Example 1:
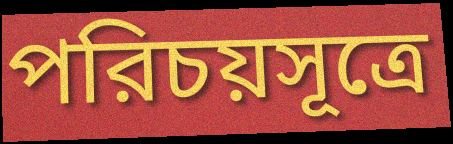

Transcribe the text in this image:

পরিচয়সূত্রে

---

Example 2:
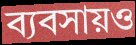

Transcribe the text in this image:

ব্যবসায়ও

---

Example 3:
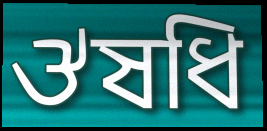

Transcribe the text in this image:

ঔষধি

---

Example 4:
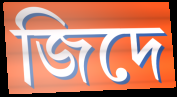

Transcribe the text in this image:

জিদে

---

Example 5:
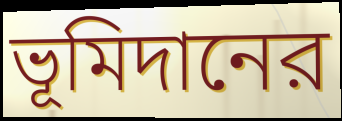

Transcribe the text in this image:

ভূমিদানের